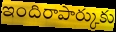
ఇందిరాపార్కుకు